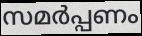
സമർപ്പണം